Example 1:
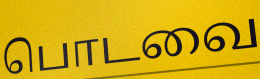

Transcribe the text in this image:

பொடவை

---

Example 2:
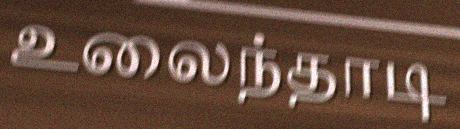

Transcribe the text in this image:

உலைந்தாடி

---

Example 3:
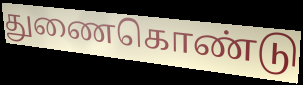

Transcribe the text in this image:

துணைகொண்டு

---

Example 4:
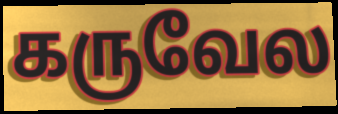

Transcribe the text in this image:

கருவேல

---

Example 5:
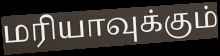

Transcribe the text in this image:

மரியாவுக்கும்